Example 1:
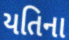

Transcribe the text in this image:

યતિના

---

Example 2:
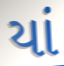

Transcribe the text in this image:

યાં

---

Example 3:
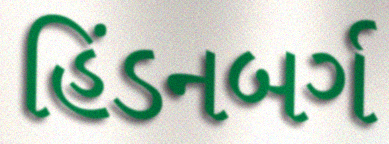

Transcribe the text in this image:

હિંડનબર્ગ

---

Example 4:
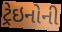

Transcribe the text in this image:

ટ્રેઇનોની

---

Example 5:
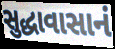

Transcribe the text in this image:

સુદ્ધાવાસાનં